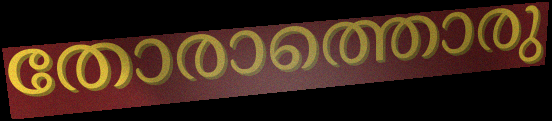
തോരാത്തൊരു